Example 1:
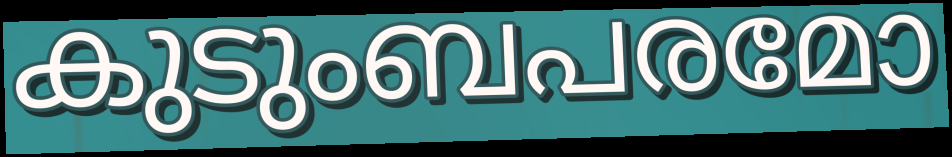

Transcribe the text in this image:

കുടുംബപരമോ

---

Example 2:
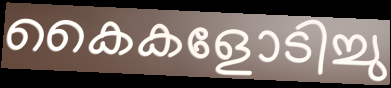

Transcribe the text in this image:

കൈകളോടിച്ചു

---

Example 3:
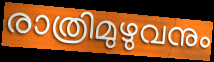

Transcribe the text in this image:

രാത്രിമുഴുവനും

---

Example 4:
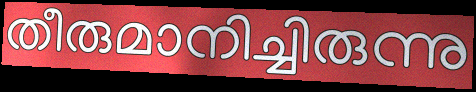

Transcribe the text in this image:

തീരുമാനിച്ചിരുന്നു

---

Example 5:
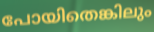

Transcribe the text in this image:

പോയിതെങ്കിലും